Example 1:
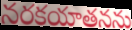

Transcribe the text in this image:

నరకయాతనను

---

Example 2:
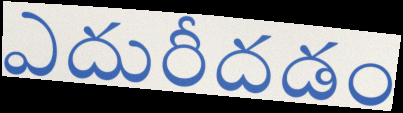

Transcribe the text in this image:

ఎదురీదడం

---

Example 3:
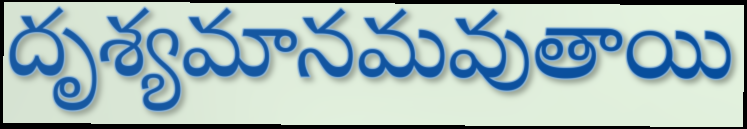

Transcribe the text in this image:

దృశ్యమానమవుతాయి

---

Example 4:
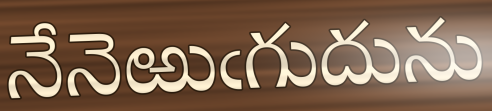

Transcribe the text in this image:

నేనెఱుఁగుదును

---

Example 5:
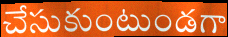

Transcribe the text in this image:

చేసుకుంటుండగా